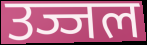
उज्जल